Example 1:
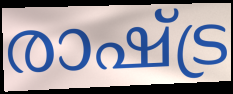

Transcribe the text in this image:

രാഷ്ട്ര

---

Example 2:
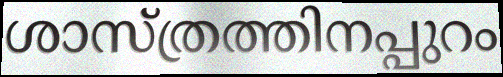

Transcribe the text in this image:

ശാസ്ത്രത്തിനപ്പുറം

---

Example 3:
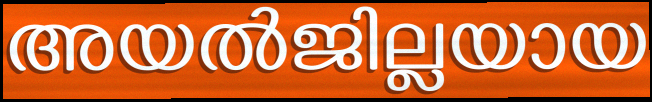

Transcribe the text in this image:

അയൽജില്ലയായ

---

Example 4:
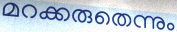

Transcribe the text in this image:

മറക്കരുതെന്നും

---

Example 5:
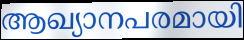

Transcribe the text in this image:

ആഖ്യാനപരമായി